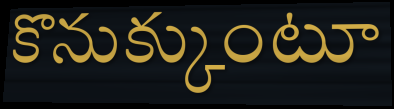
కొనుక్కుంటూ